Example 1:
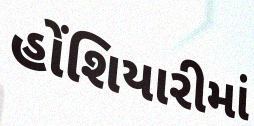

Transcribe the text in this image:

હોંશિયારીમાં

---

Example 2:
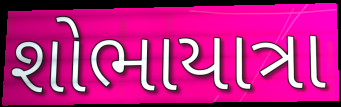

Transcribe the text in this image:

શોભાયાત્રા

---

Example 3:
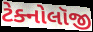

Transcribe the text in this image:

ટેક્નોલૉજી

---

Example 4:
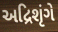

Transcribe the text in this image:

અદ્રિશૃંગે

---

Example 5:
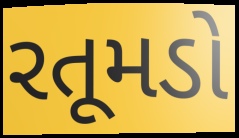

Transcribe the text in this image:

રતૂમડો